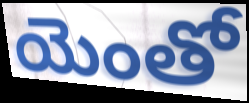
యెంతో